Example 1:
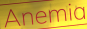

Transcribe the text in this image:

Anemia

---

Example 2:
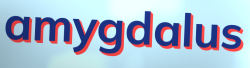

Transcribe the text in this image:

amygdalus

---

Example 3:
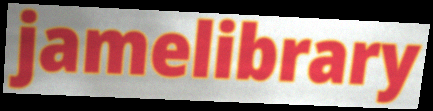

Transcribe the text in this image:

jamelibrary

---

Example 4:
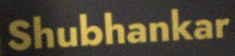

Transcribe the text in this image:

Shubhankar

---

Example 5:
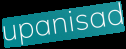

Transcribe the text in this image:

upanisad